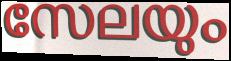
സേലയും